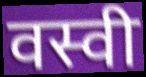
वस्वी